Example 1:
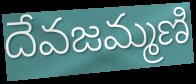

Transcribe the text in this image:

దేవజమ్మణి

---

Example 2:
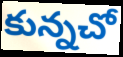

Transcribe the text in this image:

కున్నచో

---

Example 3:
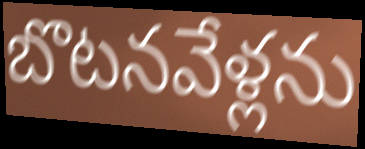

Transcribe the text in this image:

బొటనవేళ్లను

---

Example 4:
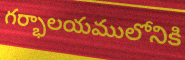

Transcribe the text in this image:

గర్భాలయములోనికి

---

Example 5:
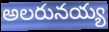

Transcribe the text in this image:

అలరునయ్య